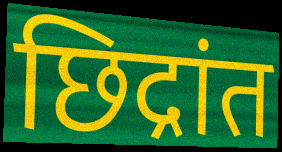
छिद्रांत